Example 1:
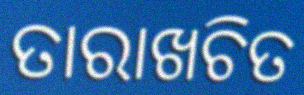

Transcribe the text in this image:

ତାରାଖଚିତ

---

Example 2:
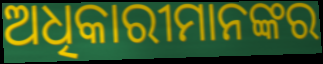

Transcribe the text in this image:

ଅଧିକାରୀମାନଙ୍କର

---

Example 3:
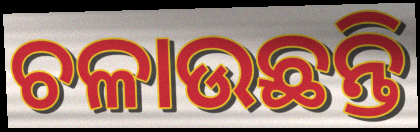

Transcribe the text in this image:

ଚଳାଉଛନ୍ତି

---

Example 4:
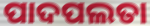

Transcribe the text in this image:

ପାଦପଲତା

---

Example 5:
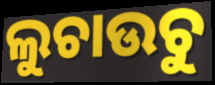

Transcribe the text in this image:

ଲୁଚାଉଚୁ